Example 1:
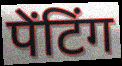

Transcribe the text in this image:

पेंटिंग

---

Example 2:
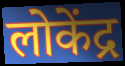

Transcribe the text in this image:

लोकेंद्र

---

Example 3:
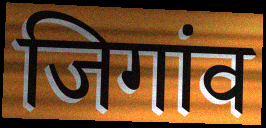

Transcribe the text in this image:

जिगांव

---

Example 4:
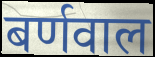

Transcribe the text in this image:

बर्णवाल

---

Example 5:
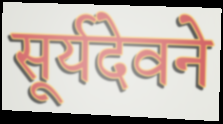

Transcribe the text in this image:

सूर्यदेवने